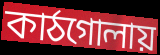
কাঠগোলায়